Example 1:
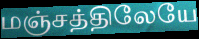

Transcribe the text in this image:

மஞ்சத்திலேயே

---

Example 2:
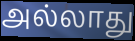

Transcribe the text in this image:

அல்லாது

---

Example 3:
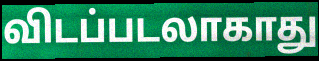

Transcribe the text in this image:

விடப்படலாகாது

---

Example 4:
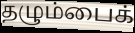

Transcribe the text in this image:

தழும்பைக்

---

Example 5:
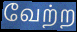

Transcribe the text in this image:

வேற்ற